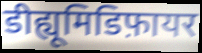
डीह्यूमिडिफ़ायर